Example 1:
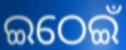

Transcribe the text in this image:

ଇଠେଇଁ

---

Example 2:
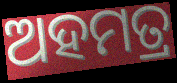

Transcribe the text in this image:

ଅହମତ୍ର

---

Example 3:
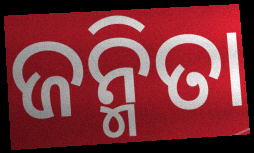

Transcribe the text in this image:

ଜନ୍ମିତା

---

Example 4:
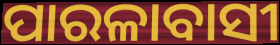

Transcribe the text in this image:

ପାରଳାବାସୀ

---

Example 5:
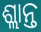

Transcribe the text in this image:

ଶ୍ଲାନ୍ତ